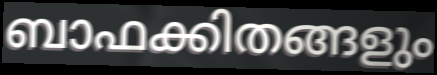
ബാഫക്കിതങ്ങളും